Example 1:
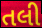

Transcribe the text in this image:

તલી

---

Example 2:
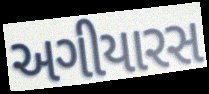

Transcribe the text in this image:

અગીયારસ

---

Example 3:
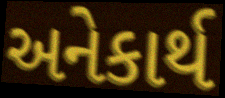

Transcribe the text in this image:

અનેકાર્થ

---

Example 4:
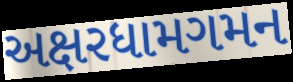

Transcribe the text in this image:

અક્ષરધામગમન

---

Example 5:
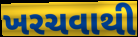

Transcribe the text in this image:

ખરચવાથી